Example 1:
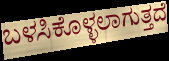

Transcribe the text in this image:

ಬಳಸಿಕೊಳ್ಳಲಾಗುತ್ತದೆ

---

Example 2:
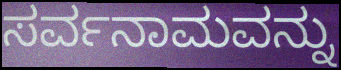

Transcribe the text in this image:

ಸರ್ವನಾಮವನ್ನು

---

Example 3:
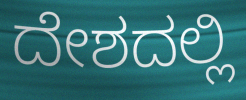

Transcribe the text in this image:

ದೇಶದಲ್ಲಿ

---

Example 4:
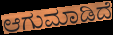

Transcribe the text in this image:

ಆಗುಮಾಡಿದೆ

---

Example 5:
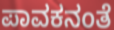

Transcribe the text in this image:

ಪಾವಕನಂತೆ